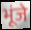
भूंजे